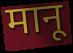
मानू